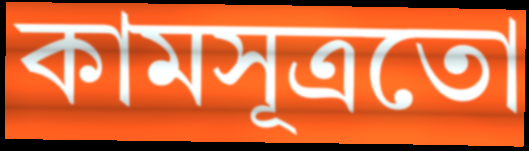
কামসূত্ৰতো